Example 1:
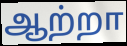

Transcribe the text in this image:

ஆற்றா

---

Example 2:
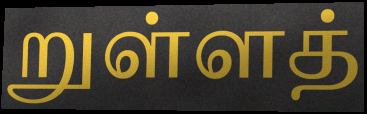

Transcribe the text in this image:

றுள்ளத்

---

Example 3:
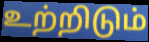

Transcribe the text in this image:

உற்றிடும்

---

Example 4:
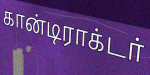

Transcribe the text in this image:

கான்டிராக்டர்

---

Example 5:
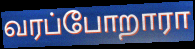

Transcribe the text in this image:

வரப்போறாரா